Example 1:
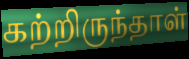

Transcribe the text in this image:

கற்றிருந்தாள்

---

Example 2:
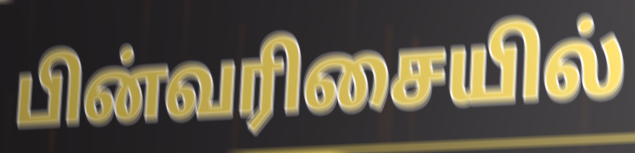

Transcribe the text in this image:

பின்வரிசையில்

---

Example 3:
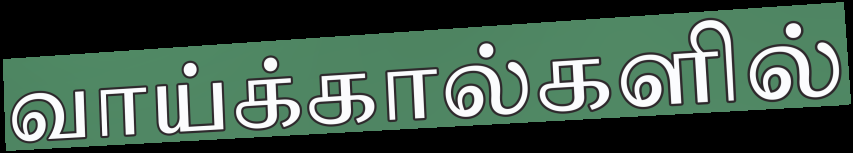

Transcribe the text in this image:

வாய்க்கால்களில்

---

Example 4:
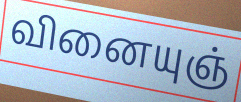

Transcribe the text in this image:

வினையுஞ்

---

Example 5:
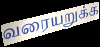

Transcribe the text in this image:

வரையறுக்க